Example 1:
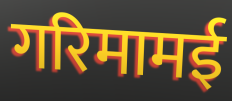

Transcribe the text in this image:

गरिमामई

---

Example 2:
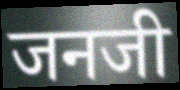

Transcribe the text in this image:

जनजी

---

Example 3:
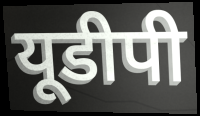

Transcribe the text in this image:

यूडीपी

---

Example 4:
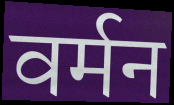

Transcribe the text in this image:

वर्मन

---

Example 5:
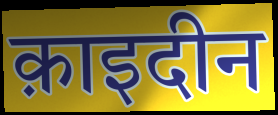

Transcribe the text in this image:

क़ाइदीन